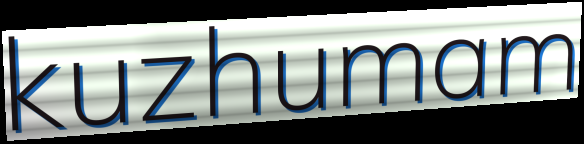
kuzhumam